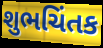
શુભચિંતક